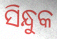
ସିନ୍ଧୁକ